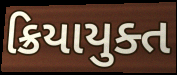
ક્રિયાયુક્ત